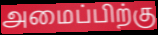
அமைப்பிற்கு